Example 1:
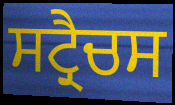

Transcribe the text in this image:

ਸਟ੍ਰੈਚਸ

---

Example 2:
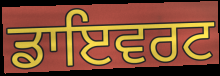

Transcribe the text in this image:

ਡਾਇਵਰਟ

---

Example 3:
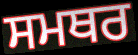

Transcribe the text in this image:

ਸਮਥਰ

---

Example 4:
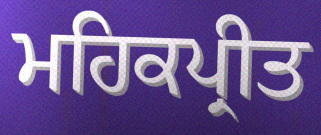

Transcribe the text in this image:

ਮਹਿਕਪ੍ਰੀਤ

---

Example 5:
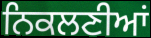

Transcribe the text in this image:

ਨਿਕਲਣੀਆਂ